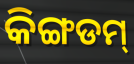
କିଙ୍ଗଡମ୍